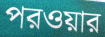
পরওয়ার